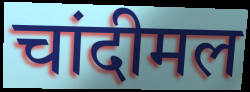
चांदीमल